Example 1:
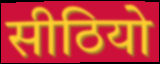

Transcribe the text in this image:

सीठियो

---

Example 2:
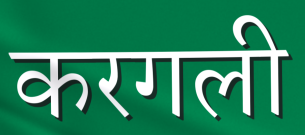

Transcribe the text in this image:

करगली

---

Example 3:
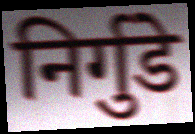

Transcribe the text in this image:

निर्गुडे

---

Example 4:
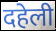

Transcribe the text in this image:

दहेली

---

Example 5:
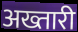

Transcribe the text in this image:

अख्तारी